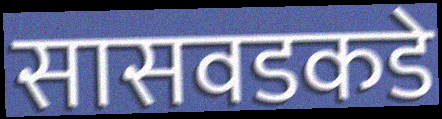
सासवडकडे